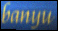
banyu